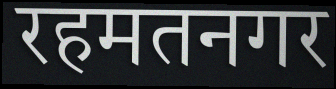
रहमतनगर